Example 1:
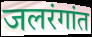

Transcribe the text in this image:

जलरंगांत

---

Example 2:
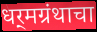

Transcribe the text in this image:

धर्मग्रंथाचा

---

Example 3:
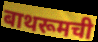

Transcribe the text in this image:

बाथरूमची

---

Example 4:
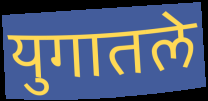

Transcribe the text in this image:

युगातले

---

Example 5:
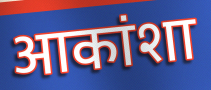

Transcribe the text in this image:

आकांशा